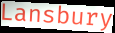
Lansbury